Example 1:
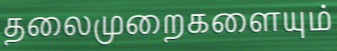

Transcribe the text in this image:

தலைமுறைகளையும்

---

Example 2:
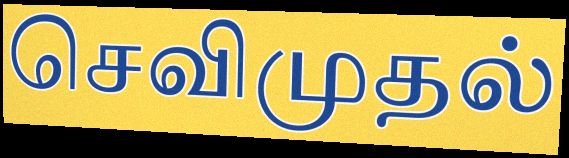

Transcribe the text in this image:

செவிமுதல்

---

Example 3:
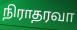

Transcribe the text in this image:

நிராதரவா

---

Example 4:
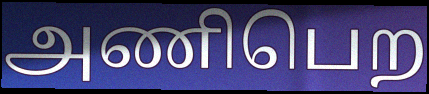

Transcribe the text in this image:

அணிபெற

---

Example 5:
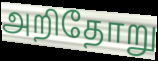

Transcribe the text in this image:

அறிதோறு